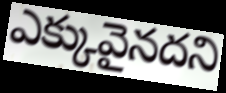
ఎక్కువైనదని